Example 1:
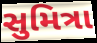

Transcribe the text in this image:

સુમિત્રા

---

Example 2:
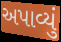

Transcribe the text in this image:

અપાવ્યું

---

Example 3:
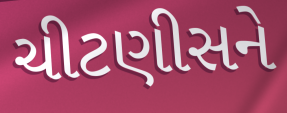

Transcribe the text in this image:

ચીટણીસને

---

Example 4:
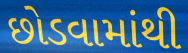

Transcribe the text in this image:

છોડવામાંથી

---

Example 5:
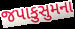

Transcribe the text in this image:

જપાકુસુમના